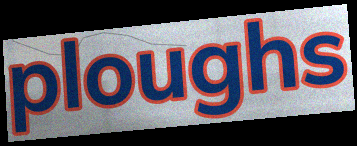
ploughs